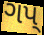
ગપ્